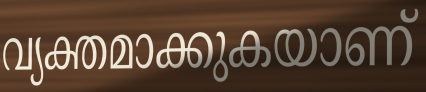
വ്യക്തമാക്കുകയാണ്